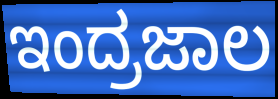
ಇಂದ್ರಜಾಲ